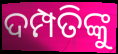
ଦମ୍ପତିଙ୍କୁ